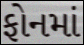
ફોનમાં